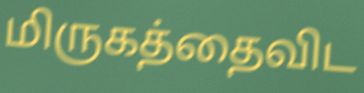
மிருகத்தைவிட